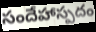
సందేహాస్పదం